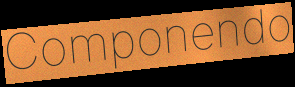
Componendo